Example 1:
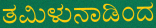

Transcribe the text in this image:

ತಮಿಳುನಾಡಿಂದ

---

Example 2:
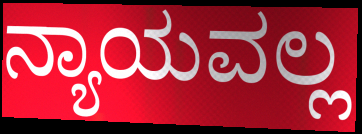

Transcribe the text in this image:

ನ್ಯಾಯವಲ್ಲ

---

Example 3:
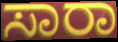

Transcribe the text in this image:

ಸಾರಾ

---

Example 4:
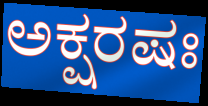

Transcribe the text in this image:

ಅಕ್ಷರಷಃ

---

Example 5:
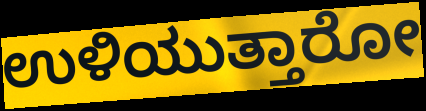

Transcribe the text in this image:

ಉಳಿಯುತ್ತಾರೋ